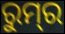
ରୁମ୍‍ର